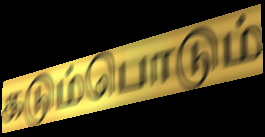
கடும்பொடும்